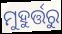
ମୁହୁର୍ତ୍ତରୁ